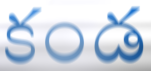
కండ